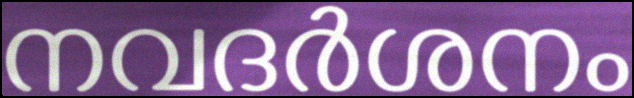
നവദർശനം